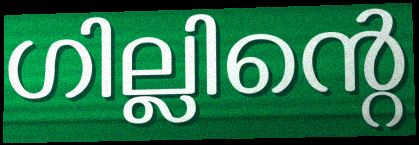
ഗില്ലിന്റെ